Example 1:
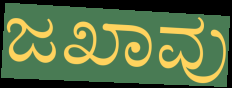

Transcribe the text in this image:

ಜಖಾವು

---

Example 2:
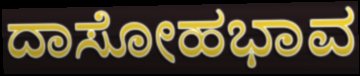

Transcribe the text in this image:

ದಾಸೋಹಭಾವ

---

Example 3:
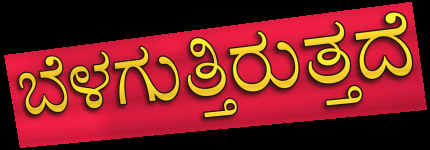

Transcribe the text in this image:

ಬೆಳಗುತ್ತಿರುತ್ತದೆ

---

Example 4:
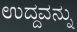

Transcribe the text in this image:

ಉದ್ದವನ್ನು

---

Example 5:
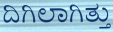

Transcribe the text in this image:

ದಿಗಿಲಾಗಿತ್ತು